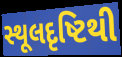
સ્થૂલદૃષ્ટિથી